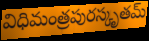
విధిమంత్రపురస్కృతమ్